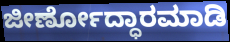
ಜೀರ್ಣೋದ್ಧಾರಮಾಡಿ